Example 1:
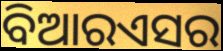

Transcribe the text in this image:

ବିଆରଏସର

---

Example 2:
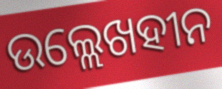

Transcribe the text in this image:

ଉଲ୍ଲେଖହୀନ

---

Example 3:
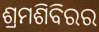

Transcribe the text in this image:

ଶ୍ରମଶିବିରର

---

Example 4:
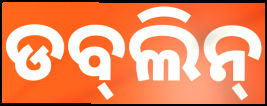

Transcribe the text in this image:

ଡବ୍‌ଲିନ୍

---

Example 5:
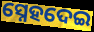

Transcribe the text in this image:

ସ୍ନେହଦେଇ